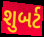
શુબર્ટ